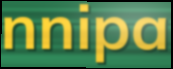
nnipa